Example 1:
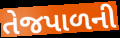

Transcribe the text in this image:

તેજપાળની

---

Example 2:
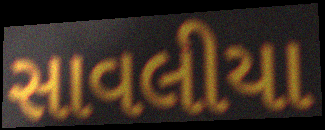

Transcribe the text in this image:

સાવલીયા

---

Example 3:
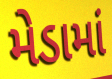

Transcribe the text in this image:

મેડામાં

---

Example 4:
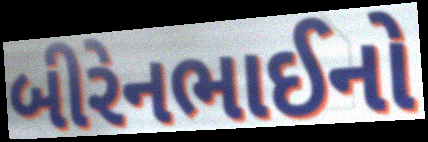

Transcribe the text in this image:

બીરેનભાઈનો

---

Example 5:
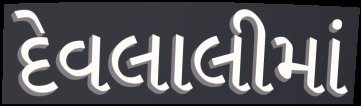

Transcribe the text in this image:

દેવલાલીમાં